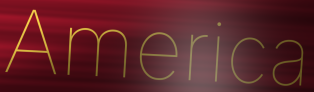
America